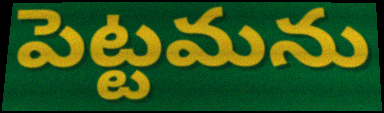
పెట్టమను